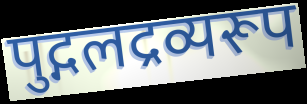
पुद्गलद्रव्यरूप